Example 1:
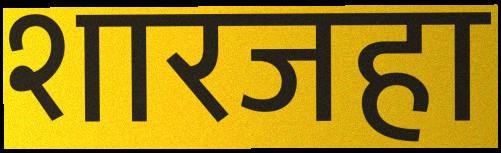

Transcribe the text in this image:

शारजहा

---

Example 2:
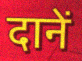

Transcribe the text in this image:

दानें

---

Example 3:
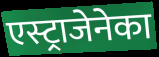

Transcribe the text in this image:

एस्‍ट्राजेनेका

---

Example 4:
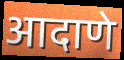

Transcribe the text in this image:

आदाणे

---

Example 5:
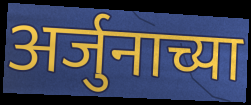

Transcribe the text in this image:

अर्जुनाच्या